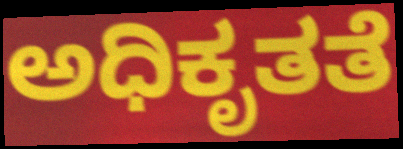
ಅಧಿಕೃತತೆ